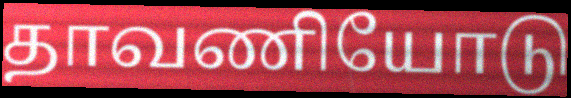
தாவணியோடு